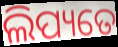
ଲିପ୍ୟତେ